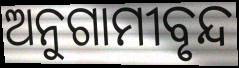
ଅନୁଗାମୀବୃନ୍ଦ